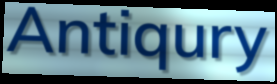
Antiqury